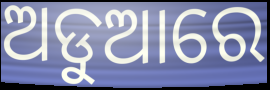
ଅଡୁଆରେ